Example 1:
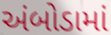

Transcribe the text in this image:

અંબોડામાં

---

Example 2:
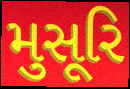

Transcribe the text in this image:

મુસૂરિ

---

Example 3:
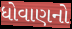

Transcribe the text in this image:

ધોવાણનો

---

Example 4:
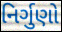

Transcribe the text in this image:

નિર્ગુણો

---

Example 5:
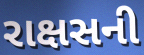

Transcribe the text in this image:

રાક્ષસની